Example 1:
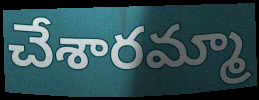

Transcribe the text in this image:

చేశారమ్మా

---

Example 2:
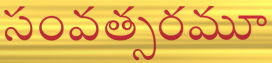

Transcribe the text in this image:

సంవత్సరమూ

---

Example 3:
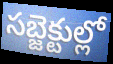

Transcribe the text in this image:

సబ్జెక్టుల్లో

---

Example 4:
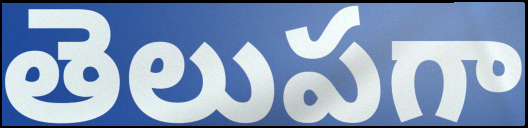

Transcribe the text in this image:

తెలుపగా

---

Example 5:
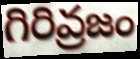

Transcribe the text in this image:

గిరివ్రజం